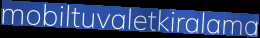
mobiltuvaletkiralama